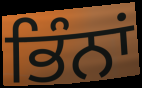
ਭਿੰਨਾਂ